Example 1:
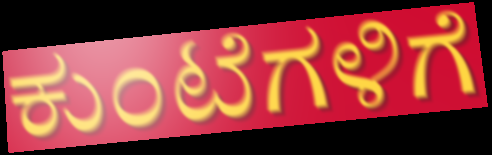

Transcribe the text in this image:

ಕುಂಟೆಗಳಿಗೆ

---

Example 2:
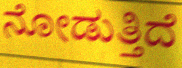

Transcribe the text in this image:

ನೋಡುತ್ತಿದೆ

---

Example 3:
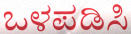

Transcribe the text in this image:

ಒಳಪಡಿಸಿ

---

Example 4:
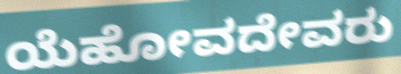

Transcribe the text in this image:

ಯೆಹೋವದೇವರು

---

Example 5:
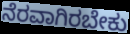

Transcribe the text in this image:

ನೆರವಾಗಿರಬೇಕು